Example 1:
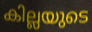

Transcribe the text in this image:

കില്ലയുടെ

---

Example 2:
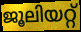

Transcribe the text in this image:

ജൂലിയറ്റ്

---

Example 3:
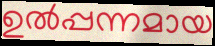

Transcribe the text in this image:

ഉൽപ്പന്നമായ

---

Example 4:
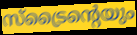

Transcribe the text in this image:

സ്ട്രൈന്റെയും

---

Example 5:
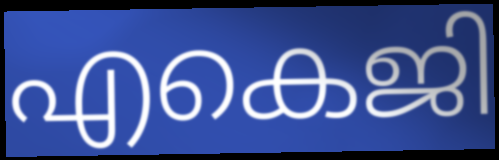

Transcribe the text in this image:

എകെജി